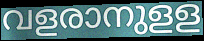
വളരാനുളള